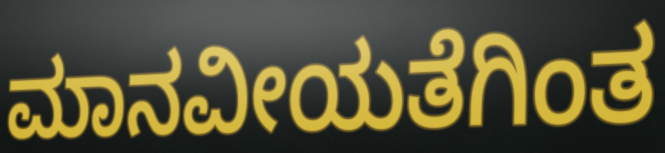
ಮಾನವೀಯತೆಗಿಂತ